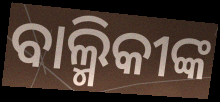
ବାଲ୍ମିକୀଙ୍କ